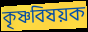
কৃষ্ণবিষয়ক